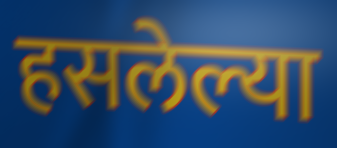
हसलेल्या